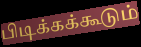
பிடிக்கக்கூடும்